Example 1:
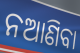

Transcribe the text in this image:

ନଆଣିବା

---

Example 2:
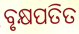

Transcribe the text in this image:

ବୃକ୍ଷପତିତ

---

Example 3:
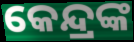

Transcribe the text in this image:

କେନ୍ଦ୍ରଙ୍କ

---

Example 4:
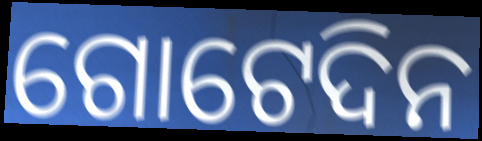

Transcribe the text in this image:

ଗୋଟେଦିନ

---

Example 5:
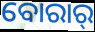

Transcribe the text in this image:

ବୋରାର୍